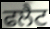
ਫਲੈਟ